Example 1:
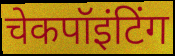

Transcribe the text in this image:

चेकपॉइंटिंग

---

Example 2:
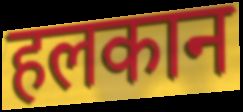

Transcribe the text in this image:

हलकान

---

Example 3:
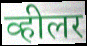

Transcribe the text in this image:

व्हीलर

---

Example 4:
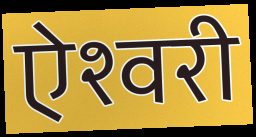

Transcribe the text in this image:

ऐश्वरी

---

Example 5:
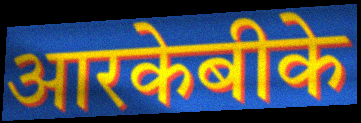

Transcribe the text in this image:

आरकेबीके